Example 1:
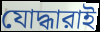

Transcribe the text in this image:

যোদ্ধারাই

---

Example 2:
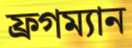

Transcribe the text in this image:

ফ্রগম্যান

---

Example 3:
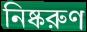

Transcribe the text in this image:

নিষ্করুণ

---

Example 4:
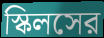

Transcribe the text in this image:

স্কিলসের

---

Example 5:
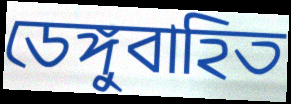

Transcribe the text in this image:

ডেঙ্গুবাহিত